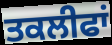
ਤਕਲੀਫਾਂ